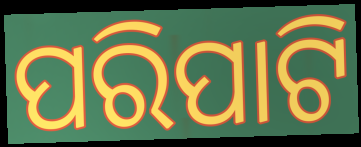
ପରିପାଟି